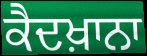
ਕੈਦਖ਼ਾਨਾ